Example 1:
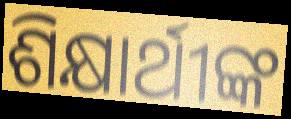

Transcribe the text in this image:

ଶିକ୍ଷାର୍ଥୀଙ୍କ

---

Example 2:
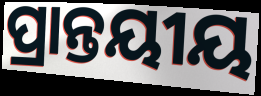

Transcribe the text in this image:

ପ୍ରାନ୍ତୟୀୟ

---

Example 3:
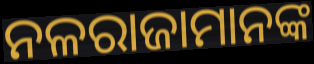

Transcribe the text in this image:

ନଳରାଜାମାନଙ୍କ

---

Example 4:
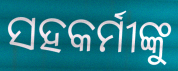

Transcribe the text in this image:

ସହକର୍ମୀଙ୍କୁ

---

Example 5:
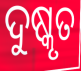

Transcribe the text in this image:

ଦୁଷ୍କୃତ